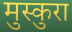
मुस्कुरा